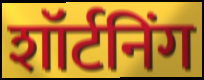
शॉर्टनिंग